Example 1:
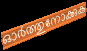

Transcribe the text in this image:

ഓർത്തുനോക്കുക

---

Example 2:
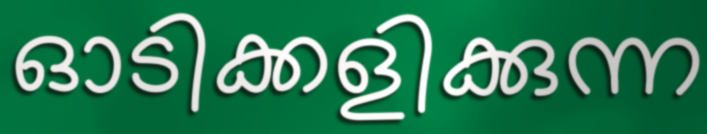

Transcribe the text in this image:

ഓടിക്കളിക്കുന്ന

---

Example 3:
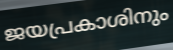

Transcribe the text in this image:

ജയപ്രകാശിനും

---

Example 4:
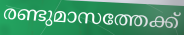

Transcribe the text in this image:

രണ്ടുമാസത്തേക്ക്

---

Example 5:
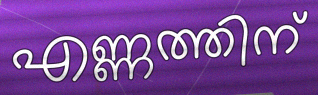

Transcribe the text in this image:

എണ്ണത്തിന്